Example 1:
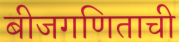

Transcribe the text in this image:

बीजगणिताची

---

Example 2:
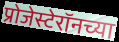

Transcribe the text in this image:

प्रोजेस्टेरॉनच्या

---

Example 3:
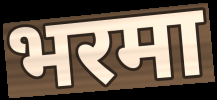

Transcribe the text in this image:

भरमा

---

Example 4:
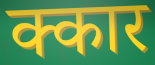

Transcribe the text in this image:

क्कार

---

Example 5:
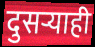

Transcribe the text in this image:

दुसर्‍याही